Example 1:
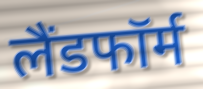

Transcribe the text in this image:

लैंडफॉर्म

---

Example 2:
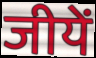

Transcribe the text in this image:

जीयें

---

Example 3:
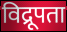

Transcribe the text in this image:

विद्रूपता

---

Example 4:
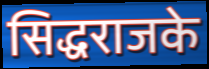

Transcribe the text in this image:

सिद्धराजके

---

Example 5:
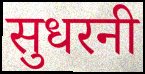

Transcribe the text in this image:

सुधरनी